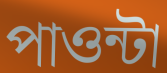
পাওন্টা